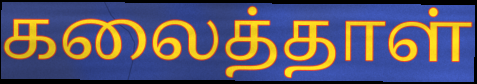
கலைத்தாள்